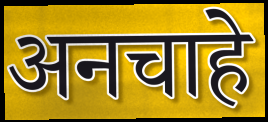
अनचाहे